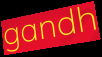
gandh